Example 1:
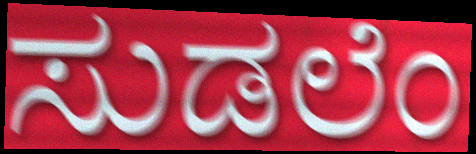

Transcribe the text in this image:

ಸುಡಲೆಂ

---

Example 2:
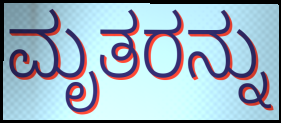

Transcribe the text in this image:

ಮೃತರನ್ನು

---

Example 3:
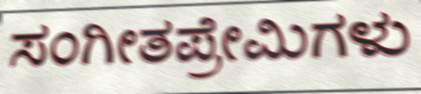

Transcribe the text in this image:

ಸಂಗೀತಪ್ರೇಮಿಗಳು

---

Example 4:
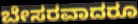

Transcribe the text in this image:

ಬೇಸರವಾದರೂ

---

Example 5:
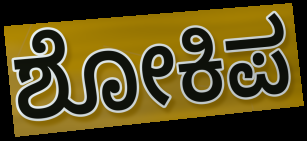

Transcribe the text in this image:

ಶೋಕಿಪ